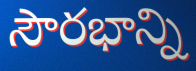
సౌరభాన్ని